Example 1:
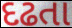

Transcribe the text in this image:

દઢતા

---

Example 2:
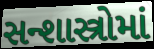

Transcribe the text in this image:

સન્શાસ્ત્રોમાં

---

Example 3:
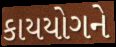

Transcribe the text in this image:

કાયયોગને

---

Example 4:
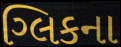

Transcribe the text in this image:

ગ્લિકના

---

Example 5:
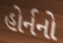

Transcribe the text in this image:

હોર્નનો